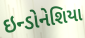
ઇન્ડોનેશિયા